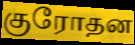
குரோதன